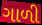
ગાળી